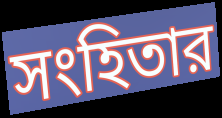
সংহিতার